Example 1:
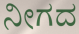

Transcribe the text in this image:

ನೀಗದ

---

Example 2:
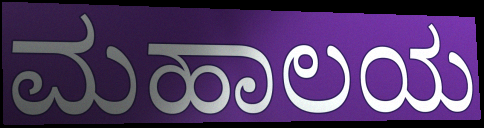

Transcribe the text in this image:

ಮಹಾಲಯ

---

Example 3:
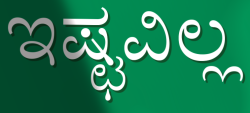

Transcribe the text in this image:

ಇಷ್ಟವಿಲ್ಲ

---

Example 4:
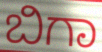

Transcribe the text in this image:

ಬಿಗಾ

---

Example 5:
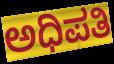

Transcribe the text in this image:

ಅಧಿಪತಿ